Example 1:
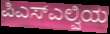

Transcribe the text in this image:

ಪಿಎಸ್ಎಲ್ವಿಯ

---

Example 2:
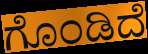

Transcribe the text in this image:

ಗೊಂಡಿದೆ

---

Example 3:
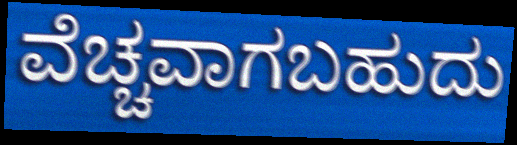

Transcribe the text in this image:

ವೆಚ್ಚವಾಗಬಹುದು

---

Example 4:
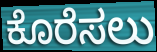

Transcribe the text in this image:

ಕೊರೆಸಲು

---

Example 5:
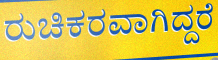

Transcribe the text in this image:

ರುಚಿಕರವಾಗಿದ್ದರೆ